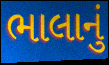
ભાલાનું